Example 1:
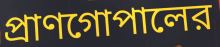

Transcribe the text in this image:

প্রাণগোপালের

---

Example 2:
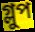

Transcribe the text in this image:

গ্লুপ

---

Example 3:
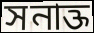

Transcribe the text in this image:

সনাক্ত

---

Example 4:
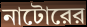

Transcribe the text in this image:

নাটোরের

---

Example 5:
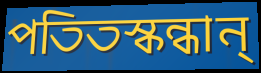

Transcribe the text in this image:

পতিতস্কন্ধান্